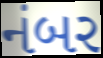
નંબર